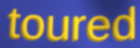
toured